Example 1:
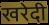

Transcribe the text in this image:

खरेदी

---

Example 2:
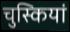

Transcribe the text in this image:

चुस्कियां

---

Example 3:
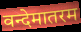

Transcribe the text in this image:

वन्देमातरम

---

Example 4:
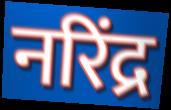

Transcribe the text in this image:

नरिंद्र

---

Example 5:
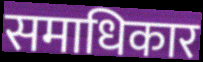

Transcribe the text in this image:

समाधिकार